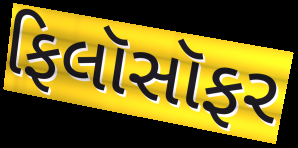
ફિલૉસૉફર